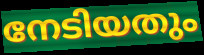
നേടിയതും